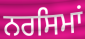
ਨਰਸਿਮਾਂ